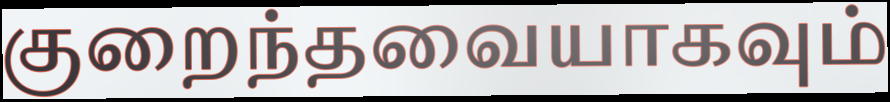
குறைந்தவையாகவும்